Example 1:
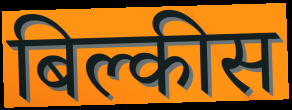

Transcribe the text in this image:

बिल्कीस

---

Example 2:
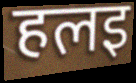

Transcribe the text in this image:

हलइ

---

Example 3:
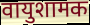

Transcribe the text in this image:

वायुशामक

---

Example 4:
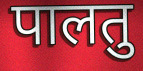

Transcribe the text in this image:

पालतु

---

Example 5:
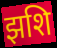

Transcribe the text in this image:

झशि